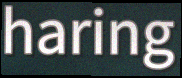
haring